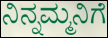
ನಿನ್ನಮ್ಮನಿಗೆ